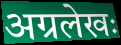
अग्रलेखः